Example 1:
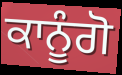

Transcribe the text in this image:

ਕਾਨੂੰਗੋ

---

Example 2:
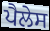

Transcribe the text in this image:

ਪੈਲੇਸ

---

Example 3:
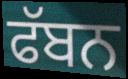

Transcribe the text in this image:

ਫੱਬਨ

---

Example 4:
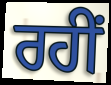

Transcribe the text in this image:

ਰਹੀਂ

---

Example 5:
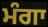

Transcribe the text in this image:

ਮੰਗਾ